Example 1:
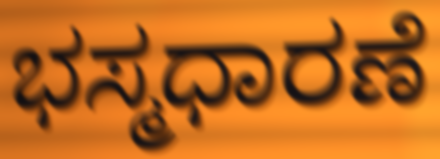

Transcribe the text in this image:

ಭಸ್ಮಧಾರಣೆ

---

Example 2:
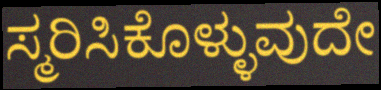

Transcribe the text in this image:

ಸ್ಮರಿಸಿಕೊಳ್ಳುವುದೇ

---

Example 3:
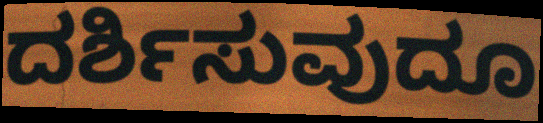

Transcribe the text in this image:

ದರ್ಶಿಸುವುದೂ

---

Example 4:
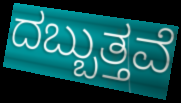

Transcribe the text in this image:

ದಬ್ಬುತ್ತವೆ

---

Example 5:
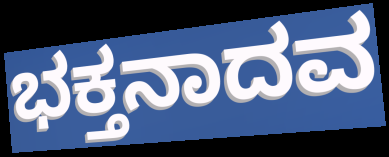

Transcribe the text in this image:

ಭಕ್ತನಾದವ